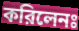
করিলেনঃ